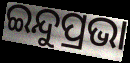
ଇନ୍ଦୁପ୍ରଭା